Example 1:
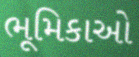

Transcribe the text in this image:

ભૂમિકાઓ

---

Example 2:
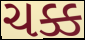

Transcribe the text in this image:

ચક્ક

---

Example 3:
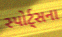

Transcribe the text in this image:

સ્પોર્ટ્સના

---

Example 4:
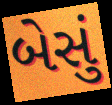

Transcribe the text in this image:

બેસું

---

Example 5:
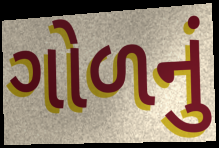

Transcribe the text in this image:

ગોળનું